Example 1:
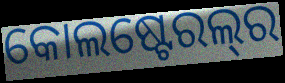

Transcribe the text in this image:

କୋଲଷ୍ଟେରଲ୍‌ର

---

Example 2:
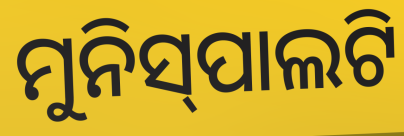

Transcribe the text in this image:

ମୁନିସ୍‍ପାଲଟି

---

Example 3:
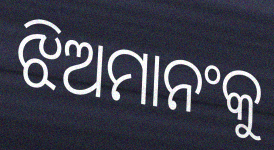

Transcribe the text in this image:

ଝିଅମାନଂକୁ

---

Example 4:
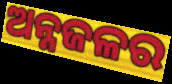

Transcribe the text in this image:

ଅନ୍ନଜଳର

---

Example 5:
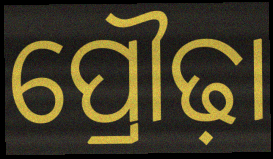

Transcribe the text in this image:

ପ୍ରୌଢ଼ା